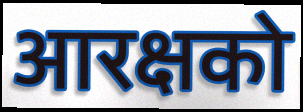
आरक्षको